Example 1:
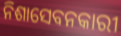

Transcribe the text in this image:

ନିଶାସେବନକାରୀ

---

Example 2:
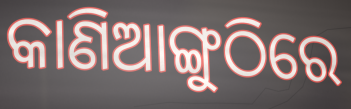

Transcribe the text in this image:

କାଣିଆଙ୍ଗୁଠିରେ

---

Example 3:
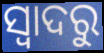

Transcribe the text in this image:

ସ୍ୱାଦରୁ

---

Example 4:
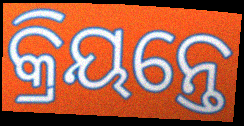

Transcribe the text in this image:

କ୍ରିୟନ୍ତେ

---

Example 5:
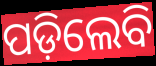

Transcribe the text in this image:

ପଡ଼ିଲେବି